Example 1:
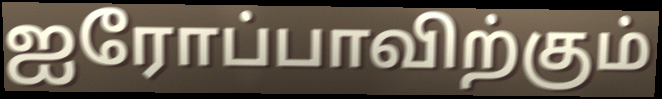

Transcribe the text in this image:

ஐரோப்பாவிற்கும்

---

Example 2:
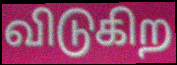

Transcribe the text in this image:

விடுகிற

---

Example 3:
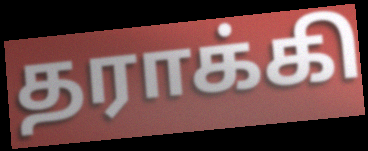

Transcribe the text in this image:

தராக்கி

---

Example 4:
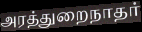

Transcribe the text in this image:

அரத்துறைநாதர்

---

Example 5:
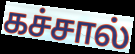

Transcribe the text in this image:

கச்சால்